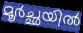
മൂർച്ഛയിൽ